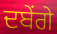
ਦਬੇਂਗੇ